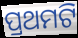
ପ୍ରଥମଟି